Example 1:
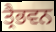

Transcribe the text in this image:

ਤ੍ਰੈਭਵਨ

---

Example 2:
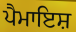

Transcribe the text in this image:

ਪੈਮਾਇਸ਼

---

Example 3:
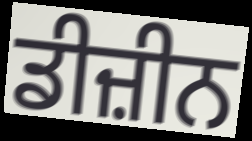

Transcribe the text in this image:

ਡੀਜ਼ੀਨ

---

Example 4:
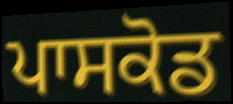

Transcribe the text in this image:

ਪਾਸਕੋਡ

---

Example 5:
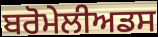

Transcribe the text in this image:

ਬਰੋਮੇਲੀਅਡਸ